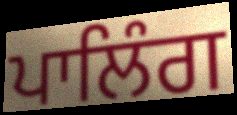
ਪਾਲਿੰਗ